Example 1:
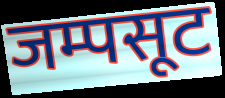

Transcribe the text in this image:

जम्पसूट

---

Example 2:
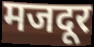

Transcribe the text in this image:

मजदूर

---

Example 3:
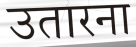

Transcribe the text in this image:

उतारना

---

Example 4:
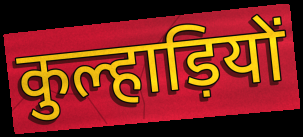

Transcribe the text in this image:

कुल्हाड़ियों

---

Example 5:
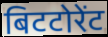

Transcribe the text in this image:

बिटटोरेंट